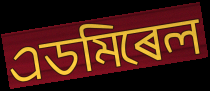
এডমিৰেল